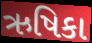
ઋષિકા